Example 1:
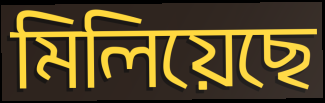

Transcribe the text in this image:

মিলিয়েছে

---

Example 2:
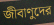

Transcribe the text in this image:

জীবাণুদের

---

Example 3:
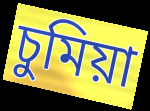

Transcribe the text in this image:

চুমিয়া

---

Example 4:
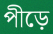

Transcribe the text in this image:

পীড়ে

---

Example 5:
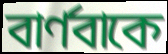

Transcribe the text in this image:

বার্ণবাকে